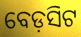
ବେଡ଼ସିଟ